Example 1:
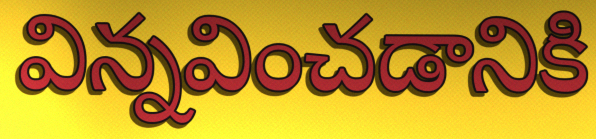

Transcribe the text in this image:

విన్నవించడానికి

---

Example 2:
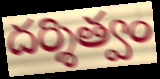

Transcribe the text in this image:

దర్శిత్వం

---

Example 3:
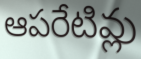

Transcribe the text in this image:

ఆపరేటివ్లు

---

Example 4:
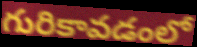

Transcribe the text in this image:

గురికావడంలో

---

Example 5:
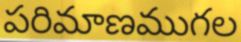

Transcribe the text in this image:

పరిమాణముగల